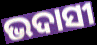
ଭଦାସୀ